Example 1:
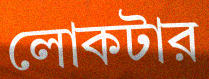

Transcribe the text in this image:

লোকটার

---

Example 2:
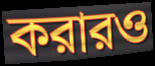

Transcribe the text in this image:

করারও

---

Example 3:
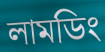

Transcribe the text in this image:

লামডিং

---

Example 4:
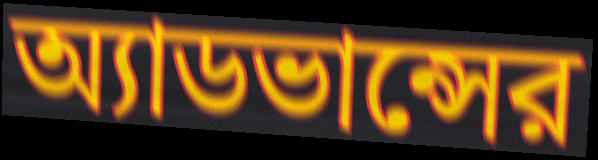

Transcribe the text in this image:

অ্যাডভান্সের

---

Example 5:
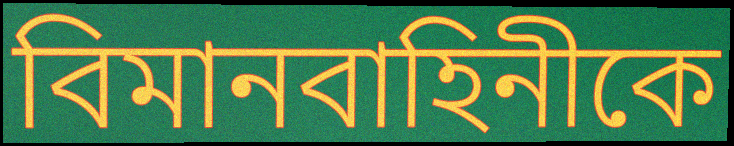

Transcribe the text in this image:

বিমানবাহিনীকে